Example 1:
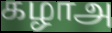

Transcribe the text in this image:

கழாஅ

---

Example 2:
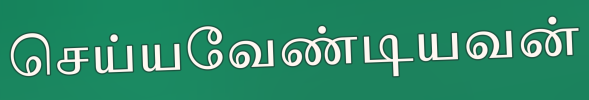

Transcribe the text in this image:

செய்யவேண்டியவன்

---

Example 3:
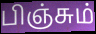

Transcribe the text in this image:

பிஞ்சும்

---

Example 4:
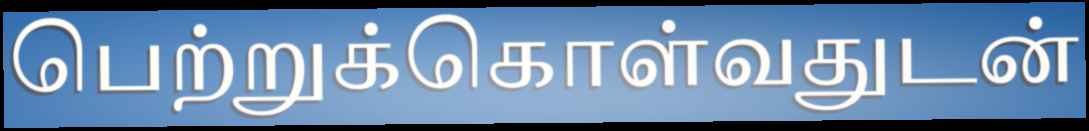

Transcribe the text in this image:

பெற்றுக்கொள்வதுடன்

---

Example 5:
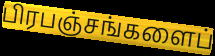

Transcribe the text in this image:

பிரபஞ்சங்களைப்